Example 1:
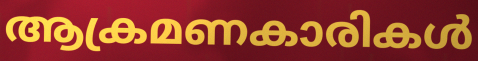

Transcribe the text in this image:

ആക്രമണകാരികൾ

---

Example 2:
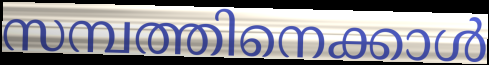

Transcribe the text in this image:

സമ്പത്തിനെക്കാൾ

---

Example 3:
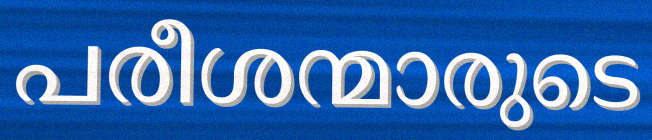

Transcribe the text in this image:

പരീശന്മാരുടെ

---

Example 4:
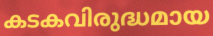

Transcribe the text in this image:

കടകവിരുദ്ധമായ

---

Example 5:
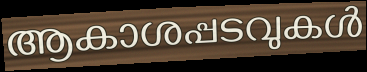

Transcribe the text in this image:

ആകാശപ്പടവുകൾ